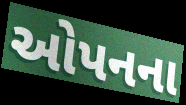
ઓપનના